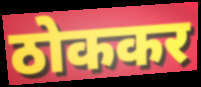
ठोककर